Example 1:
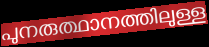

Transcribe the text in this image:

പുനരുത്ഥാനത്തിലുള്ള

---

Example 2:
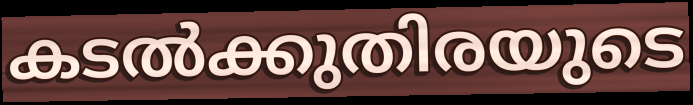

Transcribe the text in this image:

കടൽക്കുതിരയുടെ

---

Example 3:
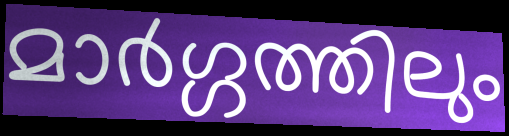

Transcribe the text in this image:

മാർഗ്ഗത്തിലും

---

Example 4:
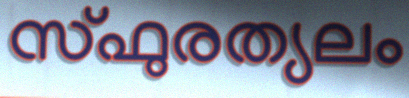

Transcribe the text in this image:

സ്ഫുരത്യലം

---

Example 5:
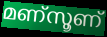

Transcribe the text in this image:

മണ്സൂണ്